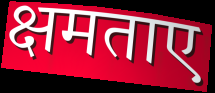
क्षमताए